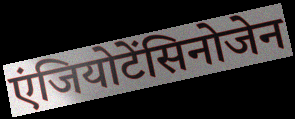
एंजियोटेंसिनोजेन